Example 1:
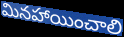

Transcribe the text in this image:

మినహాయించాలి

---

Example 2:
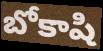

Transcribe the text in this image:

బోకాషి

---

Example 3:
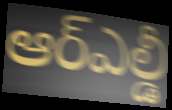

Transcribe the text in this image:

ఆర్ఎల్డీ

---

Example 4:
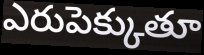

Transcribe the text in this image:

ఎరుపెక్కుతూ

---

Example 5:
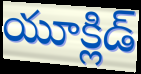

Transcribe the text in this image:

యూక్లిడ్